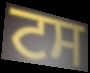
ਟਸ